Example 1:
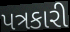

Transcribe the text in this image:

પત્રકારી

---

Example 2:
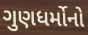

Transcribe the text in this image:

ગુણધર્મોનો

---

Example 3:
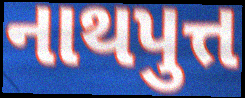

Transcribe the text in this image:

નાથપુત્ત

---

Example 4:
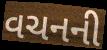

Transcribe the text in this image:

વચનની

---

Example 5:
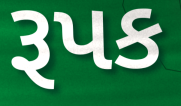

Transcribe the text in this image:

રૂપક